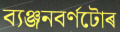
ব্যঞ্জনবৰ্ণটোৰ